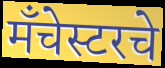
मँचेस्टरचे